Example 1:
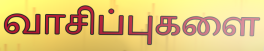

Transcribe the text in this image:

வாசிப்புகளை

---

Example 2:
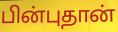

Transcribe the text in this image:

பின்புதான்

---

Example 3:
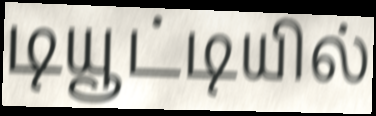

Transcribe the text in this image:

டியூட்டியில்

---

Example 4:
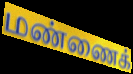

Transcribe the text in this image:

மண்ணைக்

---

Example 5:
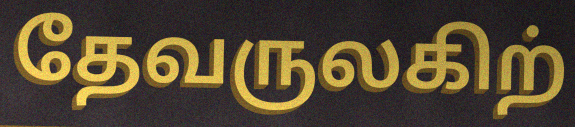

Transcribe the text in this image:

தேவருலகிற்